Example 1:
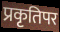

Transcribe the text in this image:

प्रकृतिपर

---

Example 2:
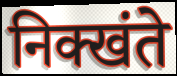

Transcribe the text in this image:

निक्खंते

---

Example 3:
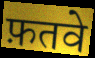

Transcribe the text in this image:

फ़तवे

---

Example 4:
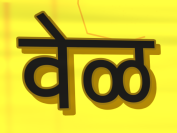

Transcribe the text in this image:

वेळ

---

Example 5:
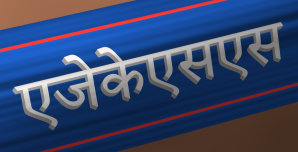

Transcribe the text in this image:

एजेकेएसएस